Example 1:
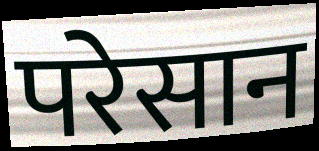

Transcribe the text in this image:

परेसान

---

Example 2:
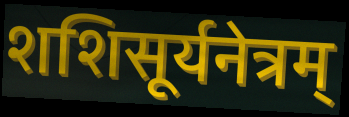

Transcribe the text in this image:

शशिसूर्यनेत्रम्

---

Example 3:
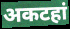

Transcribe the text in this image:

अकटहां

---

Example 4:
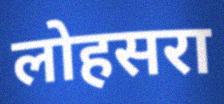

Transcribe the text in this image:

लोहसरा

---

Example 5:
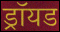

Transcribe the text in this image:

ड्रॉयड